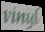
vinyl